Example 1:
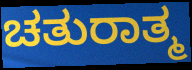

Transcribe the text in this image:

ಚತುರಾತ್ಮ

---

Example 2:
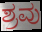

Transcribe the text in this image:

ಶ್ರವು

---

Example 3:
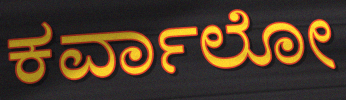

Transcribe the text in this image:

ಕರ್ವಾಲೋ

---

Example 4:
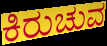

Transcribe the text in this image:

ಕಿರುಚುವ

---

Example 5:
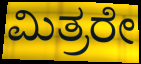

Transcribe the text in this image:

ಮಿತ್ರರೇ